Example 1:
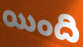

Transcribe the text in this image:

యింది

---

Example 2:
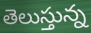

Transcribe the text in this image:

తెలుస్తున్న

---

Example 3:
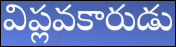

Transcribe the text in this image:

విప్లవకారుడు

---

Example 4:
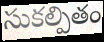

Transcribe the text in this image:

సుకల్పితం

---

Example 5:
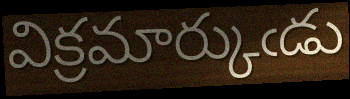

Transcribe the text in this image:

విక్రమార్కుఁడు